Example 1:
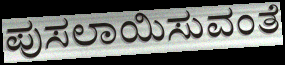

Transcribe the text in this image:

ಪುಸಲಾಯಿಸುವಂತೆ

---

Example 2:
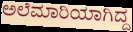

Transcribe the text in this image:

ಅಲೆಮಾರಿಯಾಗಿದ್ದ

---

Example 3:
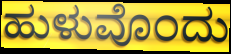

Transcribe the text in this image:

ಹುಳುವೊಂದು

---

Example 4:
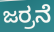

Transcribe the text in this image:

ಜರ್ರನೆ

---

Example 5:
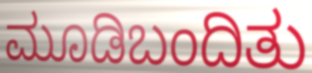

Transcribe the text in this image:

ಮೂಡಿಬಂದಿತು